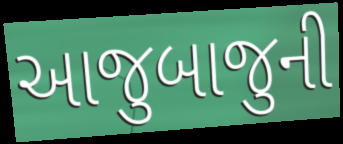
આજુબાજુની